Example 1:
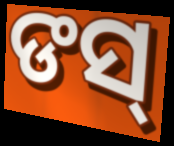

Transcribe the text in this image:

ଙସ୍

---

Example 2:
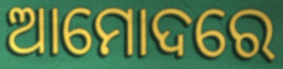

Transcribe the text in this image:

ଆମୋଦରେ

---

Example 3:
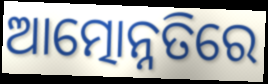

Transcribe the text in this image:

ଆତ୍ମୋନ୍ନତିରେ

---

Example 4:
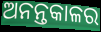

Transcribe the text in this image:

ଅନନ୍ତକାଳର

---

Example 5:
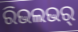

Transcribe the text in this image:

ରିଭଲଭର୍